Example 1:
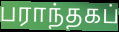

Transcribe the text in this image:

பராந்தகப்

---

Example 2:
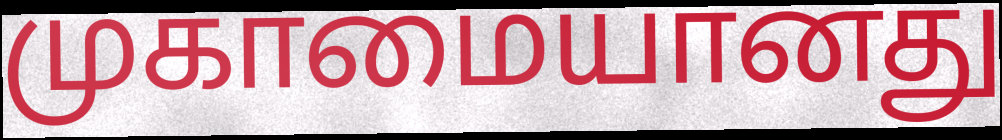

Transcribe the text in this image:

முகாமையானது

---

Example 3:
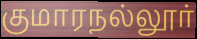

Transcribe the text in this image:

குமாரநல்லூர்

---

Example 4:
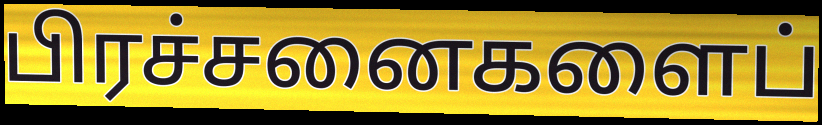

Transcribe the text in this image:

பிரச்சனைகளைப்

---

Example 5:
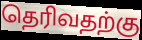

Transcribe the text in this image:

தெரிவதற்கு